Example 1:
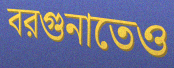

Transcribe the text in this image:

বরগুনাতেও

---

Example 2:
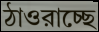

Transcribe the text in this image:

ঠাওরাচ্ছে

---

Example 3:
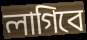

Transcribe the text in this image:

লাগিবে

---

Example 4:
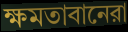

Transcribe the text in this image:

ক্ষমতাবানেরা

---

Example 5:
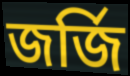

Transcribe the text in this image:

জর্জি